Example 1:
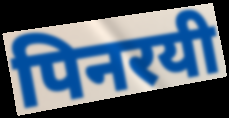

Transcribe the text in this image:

पिनरयी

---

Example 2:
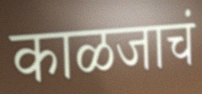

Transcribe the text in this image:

काळजाचं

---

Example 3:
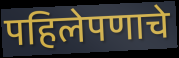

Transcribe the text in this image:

पहिलेपणाचे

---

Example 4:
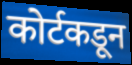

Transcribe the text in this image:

कोर्टकडून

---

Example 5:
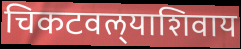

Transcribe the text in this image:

चिकटवल्याशिवाय